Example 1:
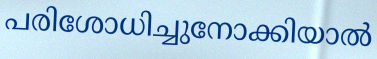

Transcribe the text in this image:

പരിശോധിച്ചുനോക്കിയാൽ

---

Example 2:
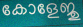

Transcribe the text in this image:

കോളേജു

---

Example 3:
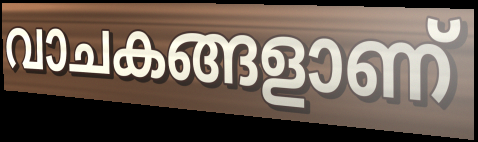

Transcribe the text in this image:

വാചകങ്ങളാണ്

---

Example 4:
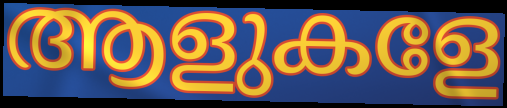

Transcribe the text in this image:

ആളുകളേ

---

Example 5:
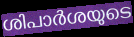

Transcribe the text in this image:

ശിപാർശയുടെ